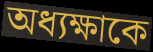
অধ্যক্ষাকে